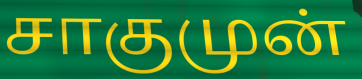
சாகுமுன்